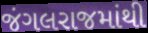
જંગલરાજમાંથી